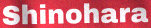
Shinohara